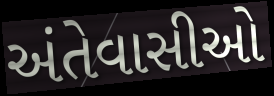
અંતેવાસીઓ